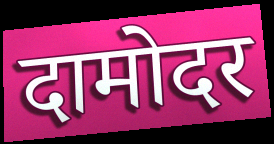
दामोदर